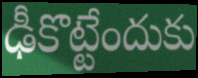
ఢీకొట్టేందుకు